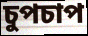
চুপচাপ